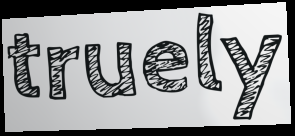
truely